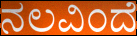
ನಲವಿಂದೆ